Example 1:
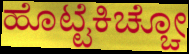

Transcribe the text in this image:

ಹೊಟ್ಟೆಕಿಚ್ಚೋ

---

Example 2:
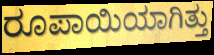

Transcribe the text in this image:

ರೂಪಾಯಿಯಾಗಿತ್ತು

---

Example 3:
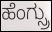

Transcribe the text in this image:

ಹೆಂಗ್ಸ್ರು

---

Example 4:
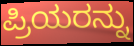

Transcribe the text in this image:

ಪ್ರಿಯರನ್ನು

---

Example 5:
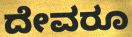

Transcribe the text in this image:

ದೇವರೂ